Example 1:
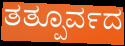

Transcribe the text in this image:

ತತ್ಪೂರ್ವದ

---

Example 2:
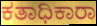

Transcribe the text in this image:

ಕತಾಧಿಕಾರಾ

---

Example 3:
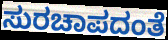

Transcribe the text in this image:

ಸುರಚಾಪದಂತೆ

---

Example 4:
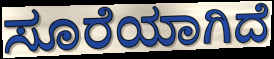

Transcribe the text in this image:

ಸೂರೆಯಾಗಿದೆ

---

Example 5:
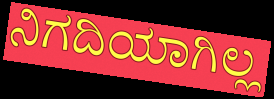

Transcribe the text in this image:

ನಿಗದಿಯಾಗಿಲ್ಲ